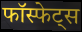
फॉस्फेट्स